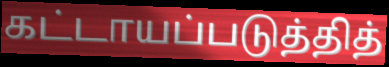
கட்டாயப்படுத்தித்